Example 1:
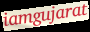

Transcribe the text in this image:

iamgujarat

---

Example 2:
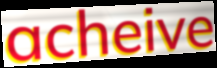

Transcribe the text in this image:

acheive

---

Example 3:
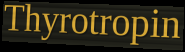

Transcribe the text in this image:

Thyrotropin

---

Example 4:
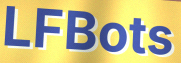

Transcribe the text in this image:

LFBots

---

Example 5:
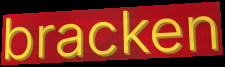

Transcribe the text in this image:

bracken